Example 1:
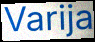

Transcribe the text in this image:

Varija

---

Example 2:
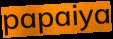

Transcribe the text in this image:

papaiya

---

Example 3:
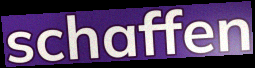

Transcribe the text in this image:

schaffen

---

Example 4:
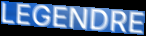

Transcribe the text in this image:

LEGENDRE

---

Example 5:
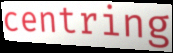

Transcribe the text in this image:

centring